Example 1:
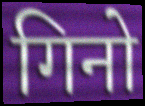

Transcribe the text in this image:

गिनो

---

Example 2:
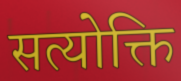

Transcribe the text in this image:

सत्योक्ति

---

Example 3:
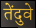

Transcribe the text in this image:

तेंदुवे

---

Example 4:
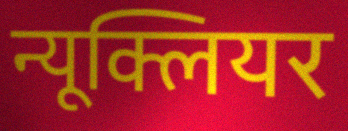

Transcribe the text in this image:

न्यूक्लियर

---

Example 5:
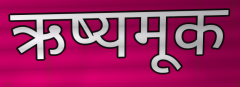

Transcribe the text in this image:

ऋष्यमूक